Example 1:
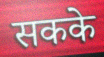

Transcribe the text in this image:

सकके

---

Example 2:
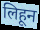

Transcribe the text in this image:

लिहून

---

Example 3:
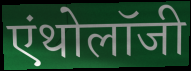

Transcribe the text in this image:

एंथोलॉजी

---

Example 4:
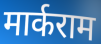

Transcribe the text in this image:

मार्कराम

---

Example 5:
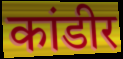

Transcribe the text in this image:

कांडीर